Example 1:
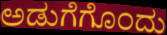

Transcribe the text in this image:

ಅಡುಗೆಗೊಂದು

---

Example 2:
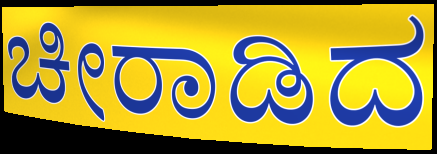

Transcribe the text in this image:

ಚೀರಾಡಿದ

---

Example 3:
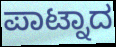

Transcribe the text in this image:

ಪಾಟ್ನಾದ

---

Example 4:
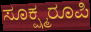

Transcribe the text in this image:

ಸೂಕ್ಷ್ಮರೂಪಿ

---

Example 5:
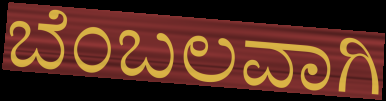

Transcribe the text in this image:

ಬೆಂಬಲವಾಗಿ